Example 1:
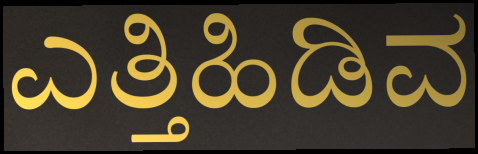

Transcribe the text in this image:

ಎತ್ತಿಹಿಡಿವ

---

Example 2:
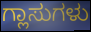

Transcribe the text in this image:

ಗ್ಲಾಸುಗಳು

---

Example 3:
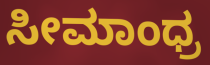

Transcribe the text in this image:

ಸೀಮಾಂಧ್ರ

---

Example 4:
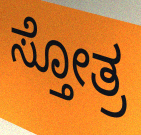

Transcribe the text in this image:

ಸ್ತೋತ್ರ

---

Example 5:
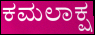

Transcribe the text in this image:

ಕಮಲಾಕ್ಷ